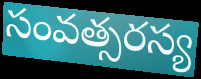
సంవత్సరస్య